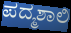
ಪದ್ಮಶಾಲಿ